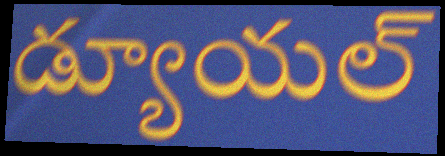
డ్యూయల్